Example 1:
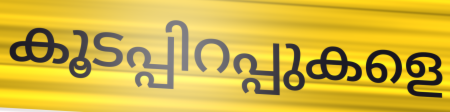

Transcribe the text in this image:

കൂടപ്പിറപ്പുകളെ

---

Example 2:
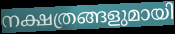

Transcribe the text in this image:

നക്ഷത്രങ്ങളുമായി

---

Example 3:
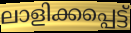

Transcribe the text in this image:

ലാളിക്കപ്പെട്ട്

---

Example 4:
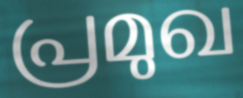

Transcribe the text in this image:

പ്രമുഖ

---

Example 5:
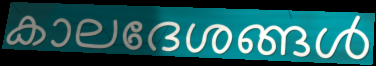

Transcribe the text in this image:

കാലദേശങ്ങൾ